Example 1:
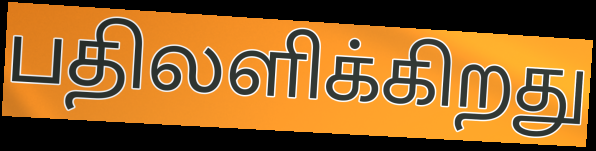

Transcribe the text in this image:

பதிலளிக்கிறது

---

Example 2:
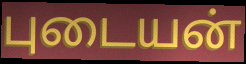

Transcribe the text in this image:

புடையன்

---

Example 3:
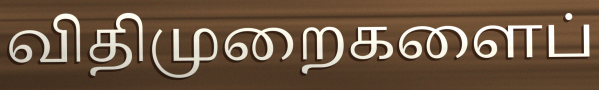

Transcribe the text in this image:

விதிமுறைகளைப்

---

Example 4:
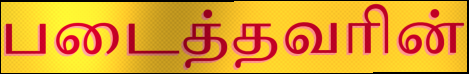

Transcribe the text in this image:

படைத்தவரின்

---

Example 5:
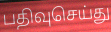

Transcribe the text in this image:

பதிவுசெய்து